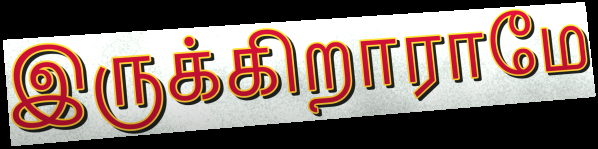
இருக்கிறாராமே